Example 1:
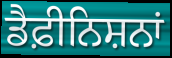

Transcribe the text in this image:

ਡੈਫ਼ੀਨਿਸ਼ਨਾਂ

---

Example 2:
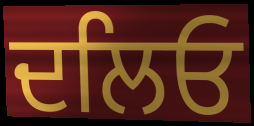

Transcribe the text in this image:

ਦਲਿਓ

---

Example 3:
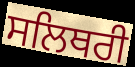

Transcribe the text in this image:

ਸਲਿਥਰੀ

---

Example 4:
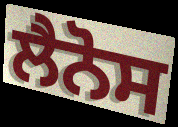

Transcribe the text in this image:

ਲੈਨੋਸ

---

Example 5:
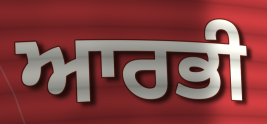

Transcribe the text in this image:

ਆਰਭੀ